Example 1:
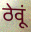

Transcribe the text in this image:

ठेवूं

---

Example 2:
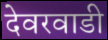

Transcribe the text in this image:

देवरवाडी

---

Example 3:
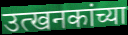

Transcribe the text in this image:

उत्खनकांच्या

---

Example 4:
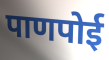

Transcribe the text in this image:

पाणपोई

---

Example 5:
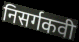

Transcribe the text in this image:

निसर्गकवी